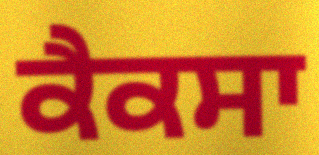
ਕੈਕਸਾ